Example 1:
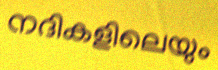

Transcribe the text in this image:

നദികളിലെയും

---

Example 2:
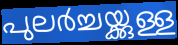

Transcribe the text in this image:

പുലർച്ചയ്ക്കുള്ള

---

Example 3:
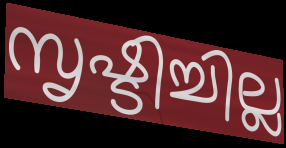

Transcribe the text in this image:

സൃഷ്ടിച്ചില്ല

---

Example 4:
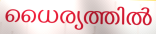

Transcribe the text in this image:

ധൈര്യത്തിൽ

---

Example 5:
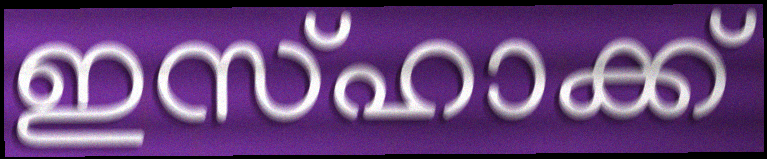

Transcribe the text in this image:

ഇസ്ഹാക്ക്